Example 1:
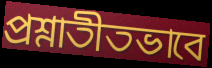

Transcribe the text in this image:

প্রশ্নাতীতভাবে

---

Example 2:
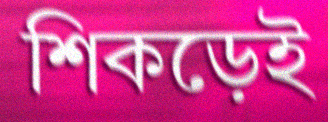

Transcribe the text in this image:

শিকড়েই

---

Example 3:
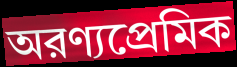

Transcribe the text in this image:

অরণ্যপ্রেমিক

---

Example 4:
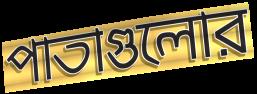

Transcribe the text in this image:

পাতাগুলোর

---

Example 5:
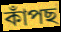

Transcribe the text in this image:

কাঁপছ